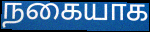
நகையாக